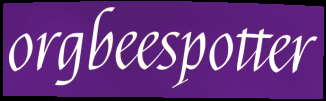
orgbeespotter